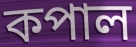
কপাল